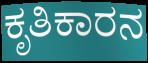
ಕೃತಿಕಾರನ